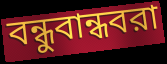
বন্ধুবান্ধবরা